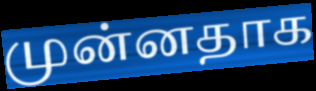
முன்னதாக